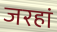
जरहां